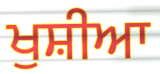
ਖੁਸ਼ੀਆ